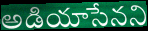
అడియాసేనని